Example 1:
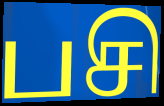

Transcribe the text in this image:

பசி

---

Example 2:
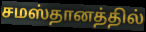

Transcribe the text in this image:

சமஸ்தானத்தில்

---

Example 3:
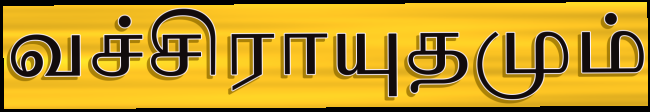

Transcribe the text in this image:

வச்சிராயுதமும்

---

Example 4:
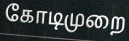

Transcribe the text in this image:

கோடிமுறை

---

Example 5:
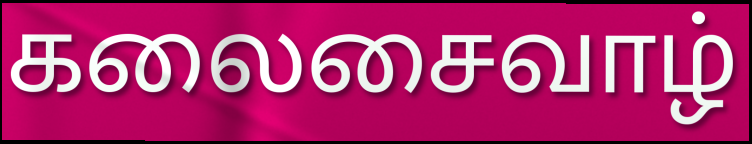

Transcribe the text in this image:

கலைசைவாழ்